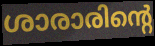
ശാരാരിന്റെ